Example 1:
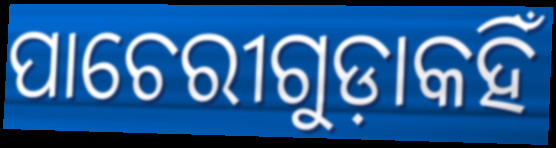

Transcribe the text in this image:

ପାଚେରୀଗୁଡ଼ାକହିଁ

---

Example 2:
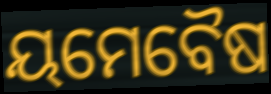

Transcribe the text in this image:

ୟମେବୈଷ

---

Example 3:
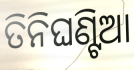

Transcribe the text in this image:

ତିନିଘଣ୍ଟିଆ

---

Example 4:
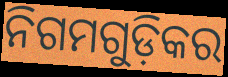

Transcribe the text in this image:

ନିଗମଗୁଡ଼ିକର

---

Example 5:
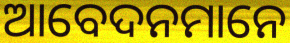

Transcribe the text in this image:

ଆବେଦନମାନେ